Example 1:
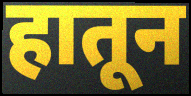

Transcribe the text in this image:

हातून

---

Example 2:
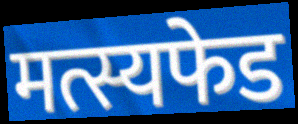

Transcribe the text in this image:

मत्स्यफेड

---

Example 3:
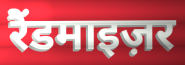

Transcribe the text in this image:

रैंडमाइज़र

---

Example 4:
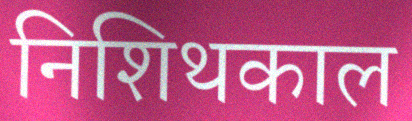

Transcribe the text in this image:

निशिथकाल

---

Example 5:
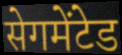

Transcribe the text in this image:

सेगमेंटेड